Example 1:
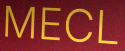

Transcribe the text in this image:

MECL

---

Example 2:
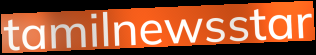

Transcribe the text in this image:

tamilnewsstar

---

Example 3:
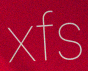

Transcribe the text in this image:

xfs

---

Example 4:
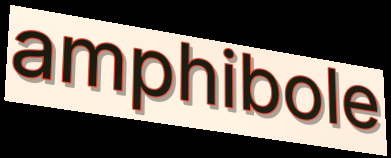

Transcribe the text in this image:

amphibole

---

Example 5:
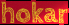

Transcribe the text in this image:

hokar